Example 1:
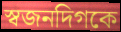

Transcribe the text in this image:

স্বজনদিগকে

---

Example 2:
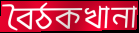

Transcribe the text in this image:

বৈঠকখানা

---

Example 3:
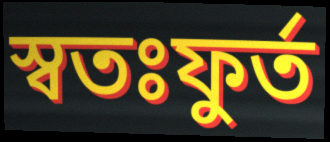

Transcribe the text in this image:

স্বতঃফুর্ত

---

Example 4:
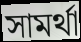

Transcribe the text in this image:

সামর্থা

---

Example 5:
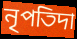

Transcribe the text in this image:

নৃপতিদা